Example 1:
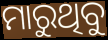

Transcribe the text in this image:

ମାରୁଥିବୁ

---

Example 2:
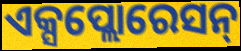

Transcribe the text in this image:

ଏକ୍ସପ୍ଲୋରେସନ୍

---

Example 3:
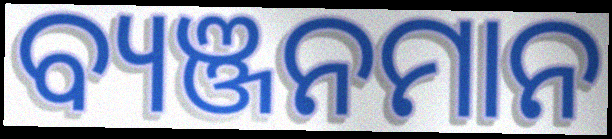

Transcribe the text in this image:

ବ୍ୟଞ୍ଜନମାନ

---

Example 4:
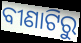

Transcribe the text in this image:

ବୀଣାଟିରୁ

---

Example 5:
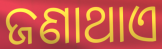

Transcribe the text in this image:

ଜଣାଥାଏ